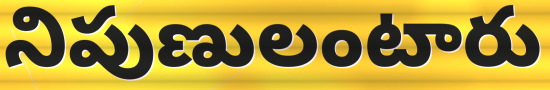
నిపుణులంటారు